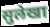
सुलेखा